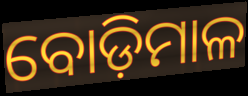
ବୋଡ଼ିମାଳ